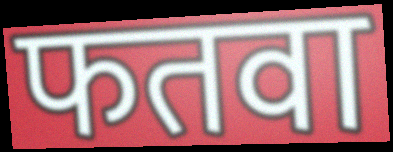
फतवा